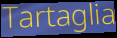
Tartaglia